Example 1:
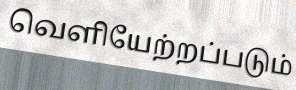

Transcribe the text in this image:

வெளியேற்றப்படும்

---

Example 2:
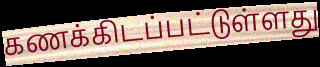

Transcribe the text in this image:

கணக்கிடப்பட்டுள்ளது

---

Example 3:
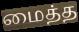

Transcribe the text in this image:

மைத்த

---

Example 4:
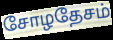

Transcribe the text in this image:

சோழதேசம்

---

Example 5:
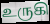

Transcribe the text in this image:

உருகி